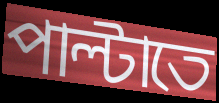
পাল্টাতে